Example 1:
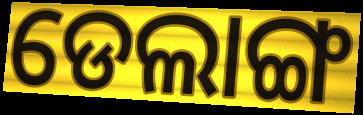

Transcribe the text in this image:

ଡେଲାଙ୍ଗ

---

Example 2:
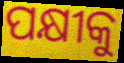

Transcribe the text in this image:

ପକ୍ଷୀକୁ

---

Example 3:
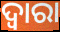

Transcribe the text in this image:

ଦ୍ବାରା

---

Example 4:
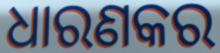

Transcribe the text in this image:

ଧାରଣକର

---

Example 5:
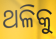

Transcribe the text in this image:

ଥଳିକୁ